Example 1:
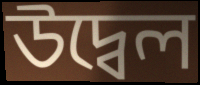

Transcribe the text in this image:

উদ্বেল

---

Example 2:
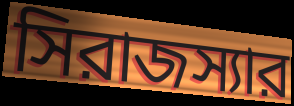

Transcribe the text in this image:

সিরাজস্যার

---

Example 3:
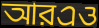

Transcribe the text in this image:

আরএও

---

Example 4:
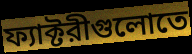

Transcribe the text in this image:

ফ্যাক্টরীগুলোতে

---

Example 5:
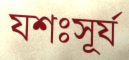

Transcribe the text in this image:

যশঃসূর্য